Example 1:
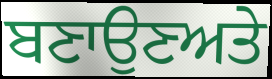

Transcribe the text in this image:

ਬਣਾਉਣਅਤੇ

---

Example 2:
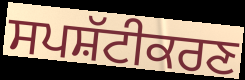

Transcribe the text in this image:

ਸਪਸ਼ੱਟੀਕਰਣ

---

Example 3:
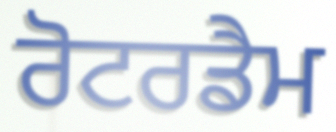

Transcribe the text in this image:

ਰੋਟਰਡੈਮ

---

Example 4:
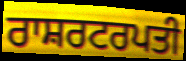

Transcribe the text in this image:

ਰਾਸ਼ਰਟਰਪਤੀ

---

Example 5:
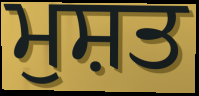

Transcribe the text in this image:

ਮੁਸ਼ਤ